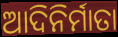
ଆଦିନିର୍ମାତା